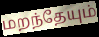
மறந்தேயும்